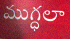
ముగ్ధలా